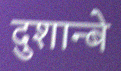
दुशान्बे